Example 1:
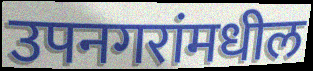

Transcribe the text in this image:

उपनगरांमधील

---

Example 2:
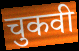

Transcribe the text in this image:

चुकवी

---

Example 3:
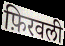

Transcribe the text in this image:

फ़िरवली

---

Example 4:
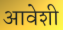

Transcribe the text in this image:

आवेशी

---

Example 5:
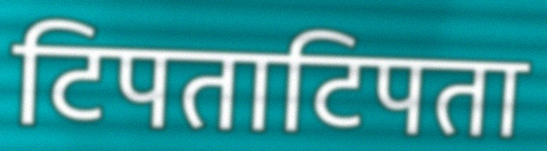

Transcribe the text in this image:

टिपताटिपता